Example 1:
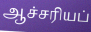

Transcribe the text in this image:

ஆச்சரியப்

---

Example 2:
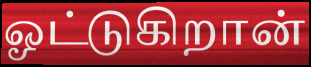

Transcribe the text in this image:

ஓட்டுகிறான்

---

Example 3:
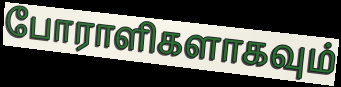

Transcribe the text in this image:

போராளிகளாகவும்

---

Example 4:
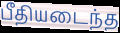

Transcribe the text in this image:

பீதியடைந்த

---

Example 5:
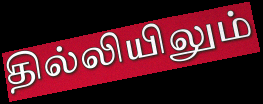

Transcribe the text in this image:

தில்லியிலும்